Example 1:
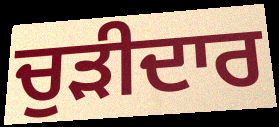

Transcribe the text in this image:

ਚੁੜੀਦਾਰ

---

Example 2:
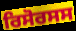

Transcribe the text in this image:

ਰਿਸੋਰਸਸ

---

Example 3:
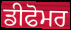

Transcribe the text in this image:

ਡੀਫੋਮਰ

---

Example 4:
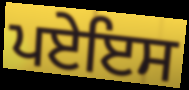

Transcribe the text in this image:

ਪਏਇਸ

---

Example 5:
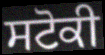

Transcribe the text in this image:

ਸਟੋਕੀ